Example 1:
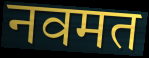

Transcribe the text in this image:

नवमत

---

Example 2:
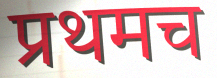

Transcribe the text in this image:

प्रथमच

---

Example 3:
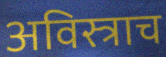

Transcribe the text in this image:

अविस्त्राच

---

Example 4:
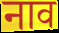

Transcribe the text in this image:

नाव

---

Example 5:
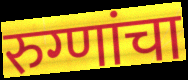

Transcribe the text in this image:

रुग्णांचा